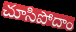
చూసిపోదాం